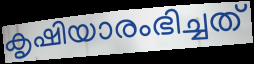
കൃഷിയാരംഭിച്ചത്